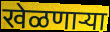
खेळणाऱ्या